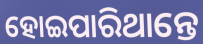
ହୋଇପାରିଥାନ୍ତେ